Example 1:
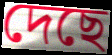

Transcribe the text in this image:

দেছে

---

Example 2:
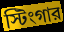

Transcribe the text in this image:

স্টিংগার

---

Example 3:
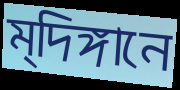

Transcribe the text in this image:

ম্‌দিঙ্গানে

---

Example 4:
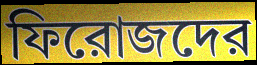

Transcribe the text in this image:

ফিরোজদের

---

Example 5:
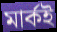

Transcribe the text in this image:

মার্কই